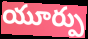
యూర్పు